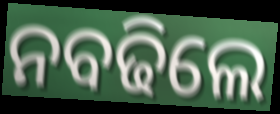
ନବଢିଲେ